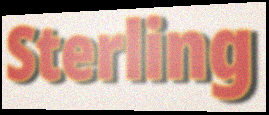
Sterling